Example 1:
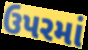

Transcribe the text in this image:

ઉપરમાં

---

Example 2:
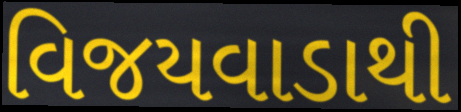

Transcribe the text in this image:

વિજયવાડાથી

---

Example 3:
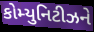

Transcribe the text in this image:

કોમ્યુનિટીઝને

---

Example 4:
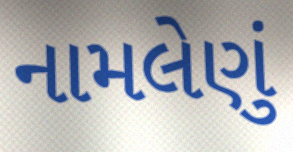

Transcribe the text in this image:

નામલેણું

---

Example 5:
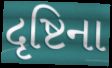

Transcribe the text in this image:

દૃષ્ટિના